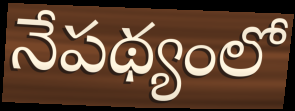
నేపథ్యంలో